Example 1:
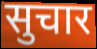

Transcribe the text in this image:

सुचार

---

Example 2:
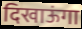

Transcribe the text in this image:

दिखाऊंगा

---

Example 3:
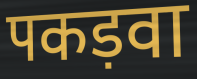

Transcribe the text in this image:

पकड़वा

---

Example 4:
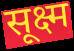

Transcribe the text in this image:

सूक्ष्‍म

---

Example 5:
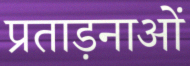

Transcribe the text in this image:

प्रताड़नाओं